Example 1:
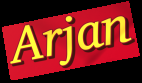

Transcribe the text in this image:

Arjan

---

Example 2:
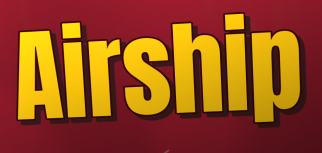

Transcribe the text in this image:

Airship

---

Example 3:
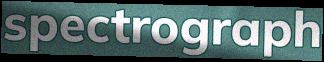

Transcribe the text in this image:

spectrograph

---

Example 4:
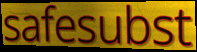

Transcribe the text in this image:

safesubst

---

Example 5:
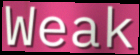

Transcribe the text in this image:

Weak